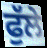
ਫੁੱਲੇ